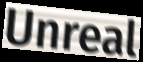
Unreal